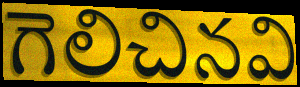
గెలిచినవి